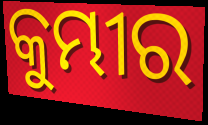
କୁମ୍ଭୀର